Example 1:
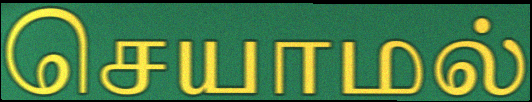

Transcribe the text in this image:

செயாமல்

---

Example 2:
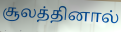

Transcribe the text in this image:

சூலத்தினால்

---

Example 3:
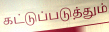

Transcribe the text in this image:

கட்டுப்படுத்தும்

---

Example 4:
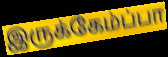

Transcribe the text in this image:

இருக்கேம்ப்பா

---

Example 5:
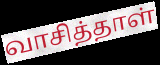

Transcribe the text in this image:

வாசித்தாள்